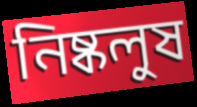
নিষ্কলুষ